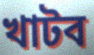
খাটব